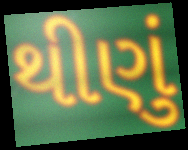
થીણું